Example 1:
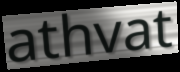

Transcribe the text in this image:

athvat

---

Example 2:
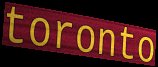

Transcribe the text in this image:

toronto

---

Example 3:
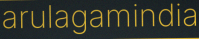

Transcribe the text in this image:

arulagamindia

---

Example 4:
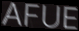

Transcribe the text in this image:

AFUE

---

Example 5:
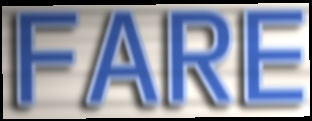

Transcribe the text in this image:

FARE